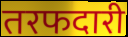
तरफदारी